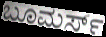
ಬೂಮರ್ಸ್